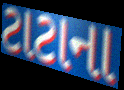
ટાટાના